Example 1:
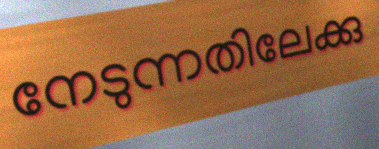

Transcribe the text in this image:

നേടുന്നതിലേക്കു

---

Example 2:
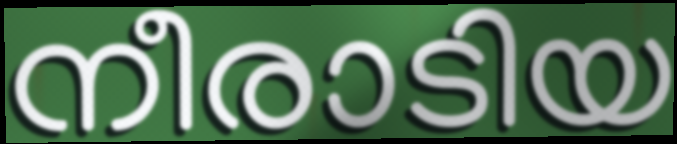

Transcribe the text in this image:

നീരാടിയ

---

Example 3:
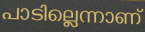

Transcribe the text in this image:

പാടില്ലെന്നാണ്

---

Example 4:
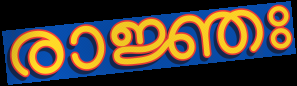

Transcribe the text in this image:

രാജ്ഞഃ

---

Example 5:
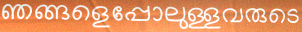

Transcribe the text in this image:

ഞങ്ങളെപ്പോലുള്ളവരുടെ